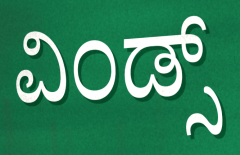
ವಿಂಡ್ಸ್